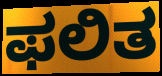
ಫಲಿತ